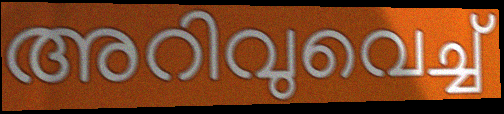
അറിവുവെച്ച്